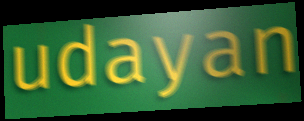
udayan